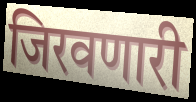
जिरवणारी